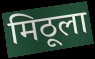
मिठूला